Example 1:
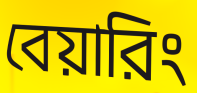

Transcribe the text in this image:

বেয়ারিং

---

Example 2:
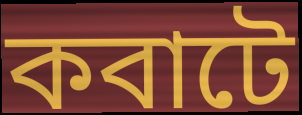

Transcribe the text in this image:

কবাটে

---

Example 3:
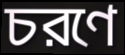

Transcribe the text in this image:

চরণে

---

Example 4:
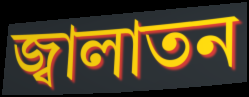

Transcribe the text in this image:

জ্বালাতন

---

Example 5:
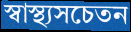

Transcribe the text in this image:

স্বাস্থ্যসচেতন